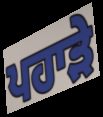
ਪਹਾੜੇ